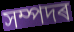
সম্পদৰ